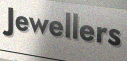
Jewellers